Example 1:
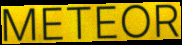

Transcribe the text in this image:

METEOR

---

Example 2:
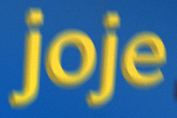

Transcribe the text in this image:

joje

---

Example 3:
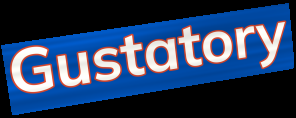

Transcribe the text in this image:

Gustatory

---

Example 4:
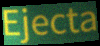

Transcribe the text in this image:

Ejecta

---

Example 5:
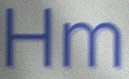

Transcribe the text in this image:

Hm